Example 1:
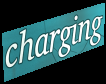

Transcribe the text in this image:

charging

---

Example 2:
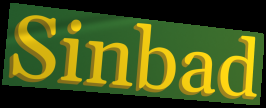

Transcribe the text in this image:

Sinbad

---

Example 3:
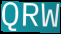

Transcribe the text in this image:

QRW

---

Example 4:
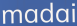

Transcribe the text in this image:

madai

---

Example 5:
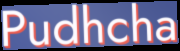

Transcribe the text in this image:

Pudhcha